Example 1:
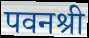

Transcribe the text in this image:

पवनश्री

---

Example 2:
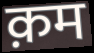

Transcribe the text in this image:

क़म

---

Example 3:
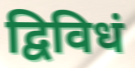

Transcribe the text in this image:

द्विविधं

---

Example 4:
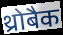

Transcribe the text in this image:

थ्रोबैक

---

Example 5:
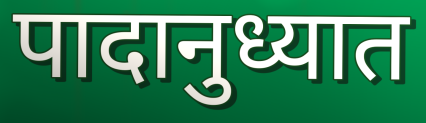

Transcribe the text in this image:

पादानुध्यात